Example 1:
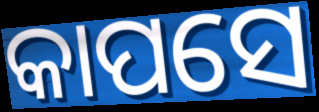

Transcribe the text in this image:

କାପସେ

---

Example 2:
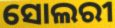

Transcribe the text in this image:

ସୋଲରୀ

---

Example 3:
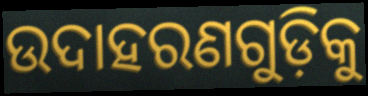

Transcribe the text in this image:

ଉଦାହରଣଗୁଡ଼ିକୁ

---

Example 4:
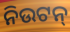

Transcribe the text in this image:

ନିଉଟନ୍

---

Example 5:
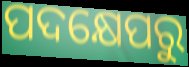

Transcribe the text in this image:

ପଦକ୍ଷେପରୁ